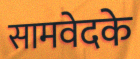
सामवेदके